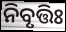
ନିବୃତ୍ତିଃ